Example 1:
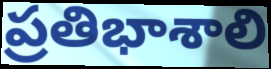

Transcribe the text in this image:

ప్రతిభాశాలి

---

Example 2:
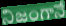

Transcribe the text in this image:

నిజంగానే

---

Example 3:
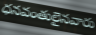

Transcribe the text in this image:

ధనవంతులైనవారు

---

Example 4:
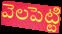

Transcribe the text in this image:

వెలపెట్టి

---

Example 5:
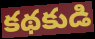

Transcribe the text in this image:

కథకుడి